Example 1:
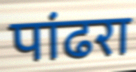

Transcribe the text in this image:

पांढरा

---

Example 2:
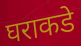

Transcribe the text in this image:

घराकडे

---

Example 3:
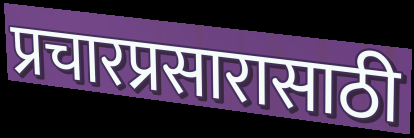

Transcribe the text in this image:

प्रचारप्रसारासाठी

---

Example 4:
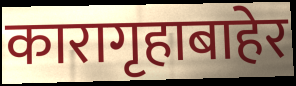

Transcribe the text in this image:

कारागृहाबाहेर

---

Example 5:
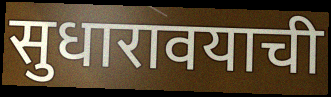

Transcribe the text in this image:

सुधारावयाची